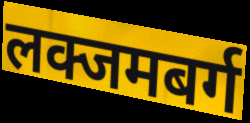
लक्जमबर्ग